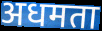
अधमता